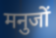
मनुजों